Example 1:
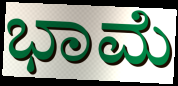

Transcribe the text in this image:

ಭಾಮೆ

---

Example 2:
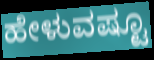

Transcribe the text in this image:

ಹೇಳುವಷ್ಟೂ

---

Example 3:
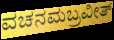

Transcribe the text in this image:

ವಚನಮಬ್ರವೀತ್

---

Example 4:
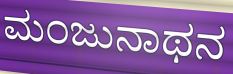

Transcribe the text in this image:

ಮಂಜುನಾಥನ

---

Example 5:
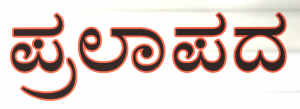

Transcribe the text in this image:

ಪ್ರಲಾಪದ